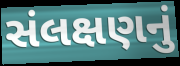
સંલક્ષણનું